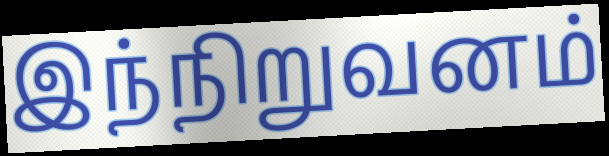
இந்நிறுவனம்